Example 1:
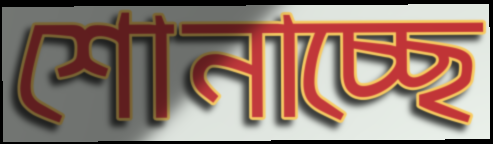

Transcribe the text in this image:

শোনাচ্ছে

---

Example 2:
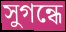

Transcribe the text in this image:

সুগন্ধে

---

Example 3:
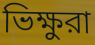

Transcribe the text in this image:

ভিক্ষুরা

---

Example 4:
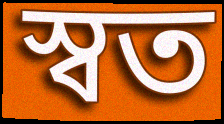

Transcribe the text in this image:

স্বত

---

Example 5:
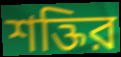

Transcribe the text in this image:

শক্তির